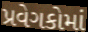
પ્રવેગકોમાં